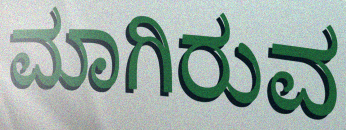
ಮಾಗಿರುವ